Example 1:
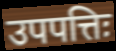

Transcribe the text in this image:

उपपत्तिः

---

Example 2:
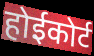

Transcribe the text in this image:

होईकोर्ट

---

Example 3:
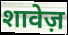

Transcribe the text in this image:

शावेज़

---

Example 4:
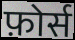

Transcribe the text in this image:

फ़ोर्स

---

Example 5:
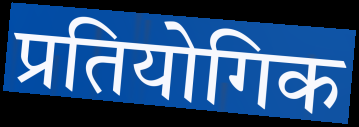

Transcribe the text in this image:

प्रतियोगिक